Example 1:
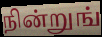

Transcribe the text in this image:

நின்றுங்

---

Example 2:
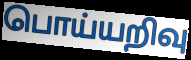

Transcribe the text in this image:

பொய்யறிவு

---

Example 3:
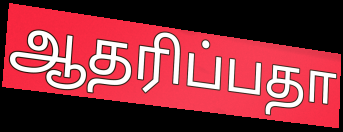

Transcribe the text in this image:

ஆதரிப்பதா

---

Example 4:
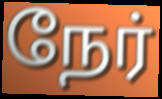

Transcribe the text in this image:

நேர்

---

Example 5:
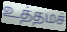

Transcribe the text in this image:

உத்தமச்